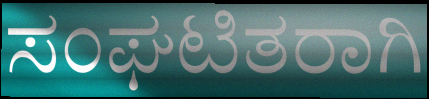
ಸಂಘಟಿತರಾಗಿ